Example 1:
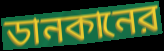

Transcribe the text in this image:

ডানকানের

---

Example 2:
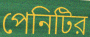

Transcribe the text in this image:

পেনিটির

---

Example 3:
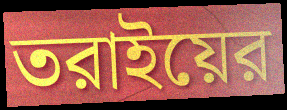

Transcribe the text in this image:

তরাইয়ের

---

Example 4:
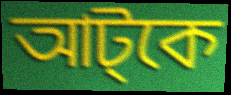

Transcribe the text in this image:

আট্‌কে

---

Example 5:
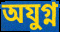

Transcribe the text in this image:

অযুগ্ন